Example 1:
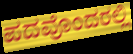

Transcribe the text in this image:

ಪದವೊಂದರಲ್ಲಿ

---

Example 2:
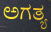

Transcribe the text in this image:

ಅಗತ್ಯ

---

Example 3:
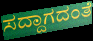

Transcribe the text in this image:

ಸದ್ದಾಗದಂತೆ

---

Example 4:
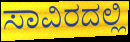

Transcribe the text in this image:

ಸಾವಿರದಲ್ಲಿ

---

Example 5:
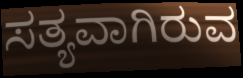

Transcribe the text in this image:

ಸತ್ಯವಾಗಿರುವ